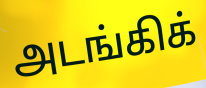
அடங்கிக்